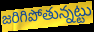
జరిగిపోతున్నట్టు